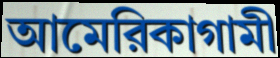
আমেরিকাগামী